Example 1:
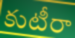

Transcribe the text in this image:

కుటీరా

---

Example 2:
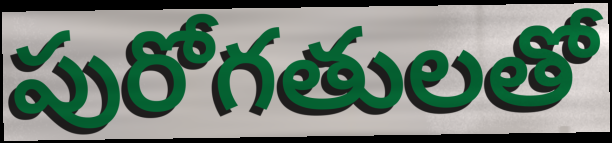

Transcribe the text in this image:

పురోగతులతో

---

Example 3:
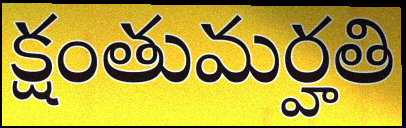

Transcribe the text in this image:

క్షంతుమర్హతి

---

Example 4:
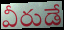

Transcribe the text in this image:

వీరుడే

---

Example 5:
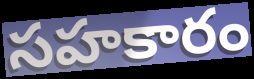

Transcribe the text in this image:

సహకారం